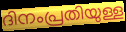
ദിനംപ്രതിയുള്ള